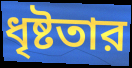
ধৃষ্টতার